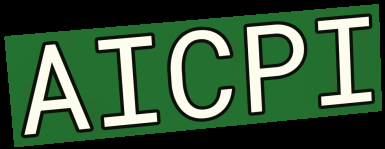
AICPI